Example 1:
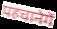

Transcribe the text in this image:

पहचानेगें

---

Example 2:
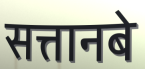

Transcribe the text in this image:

सत्तानबे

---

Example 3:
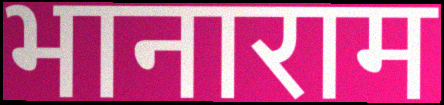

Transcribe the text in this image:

भानाराम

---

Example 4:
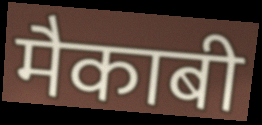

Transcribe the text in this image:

मैकाबी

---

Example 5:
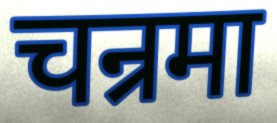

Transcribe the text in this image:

चन्रमा